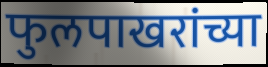
फुलपाखरांच्या